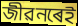
জীৱনৰেই